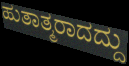
ಹುತಾತ್ಮರಾದದ್ದು